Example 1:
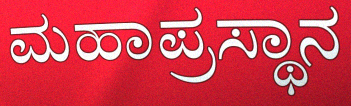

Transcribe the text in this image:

ಮಹಾಪ್ರಸ್ಥಾನ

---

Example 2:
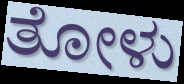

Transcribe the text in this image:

ತೋಳು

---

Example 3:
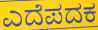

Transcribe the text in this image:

ಎದೆಪದಕ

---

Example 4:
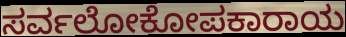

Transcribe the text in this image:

ಸರ್ವಲೋಕೋಪಕಾರಾಯ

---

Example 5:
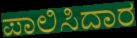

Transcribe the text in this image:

ಪಾಲಿಸಿದಾರ